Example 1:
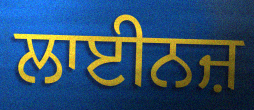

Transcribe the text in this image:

ਲਾਈਨਜ਼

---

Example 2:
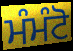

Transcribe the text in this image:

ਮੰਮੰਟੋ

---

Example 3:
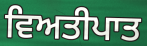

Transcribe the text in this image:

ਵਿਅਤੀਪਾਤ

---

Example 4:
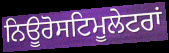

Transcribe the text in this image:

ਨਿਊਰੋਸਟਿਮੂਲੇਟਰਾਂ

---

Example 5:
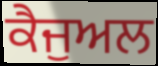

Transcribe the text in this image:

ਕੈਜੁਅਲ